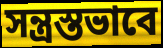
সন্ত্রস্তভাবে